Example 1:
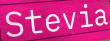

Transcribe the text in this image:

Stevia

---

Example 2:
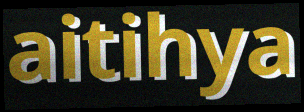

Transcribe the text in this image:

aitihya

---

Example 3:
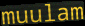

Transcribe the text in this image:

muulam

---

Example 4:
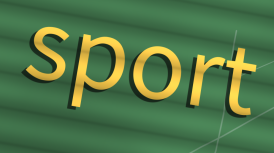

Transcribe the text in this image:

sport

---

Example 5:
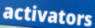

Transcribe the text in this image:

activators